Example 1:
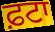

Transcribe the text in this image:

ਫ਼ਟਾ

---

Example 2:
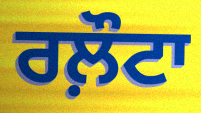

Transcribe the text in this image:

ਰਲ਼ੌਟਾ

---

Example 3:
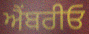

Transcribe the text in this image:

ਐੰਬਰੀਓ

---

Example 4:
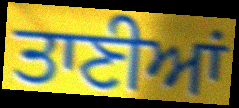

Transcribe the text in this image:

ਤਾਣੀਆਂ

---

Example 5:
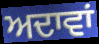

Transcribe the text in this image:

ਅਦਾਵਾਂ